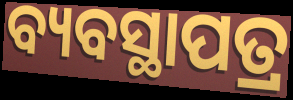
ବ୍ୟବସ୍ଥାପତ୍ର